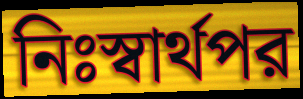
নিঃস্বার্থপর